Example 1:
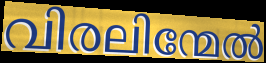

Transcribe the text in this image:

വിരലിന്മേൽ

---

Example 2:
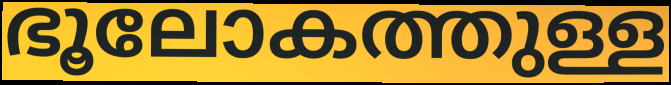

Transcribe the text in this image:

ഭൂലോകത്തുള്ള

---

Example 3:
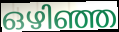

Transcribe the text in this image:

ഒഴിഞ്ഞ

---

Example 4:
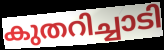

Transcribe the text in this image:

കുതറിച്ചാടി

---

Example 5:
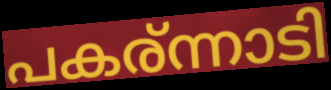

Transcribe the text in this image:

പകര്ന്നാടി